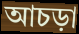
আচড়া